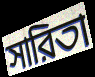
সারিতা